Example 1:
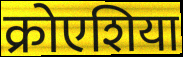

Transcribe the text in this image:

क्रोएशिया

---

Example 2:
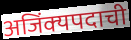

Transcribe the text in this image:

अजिंक्यपदाची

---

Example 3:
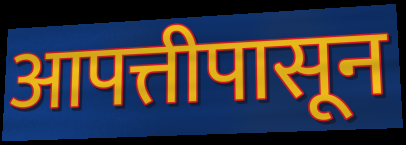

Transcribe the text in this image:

आपत्तीपासून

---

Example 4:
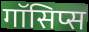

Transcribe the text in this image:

गॉसिप्स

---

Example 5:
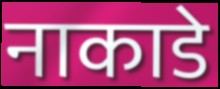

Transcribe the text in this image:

नाकाडे